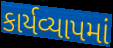
કાર્યવ્યાપમાં